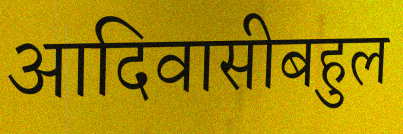
आदिवासीबहुल